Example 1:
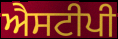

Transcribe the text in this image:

ਐਸਟੀਪੀ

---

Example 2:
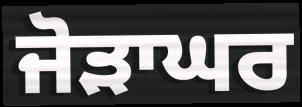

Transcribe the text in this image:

ਜੋੜਾਘਰ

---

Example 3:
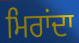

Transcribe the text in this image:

ਮਿਰਾਂਦਾ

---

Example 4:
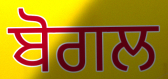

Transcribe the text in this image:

ਬੋਗਲ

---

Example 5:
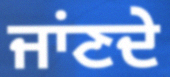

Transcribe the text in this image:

ਜਾਂਣਦੇ